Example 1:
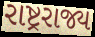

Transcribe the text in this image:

રાષ્ટ્રરાજ્ય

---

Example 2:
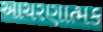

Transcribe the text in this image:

આચરણાત્મક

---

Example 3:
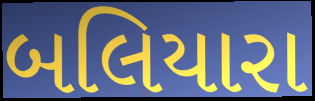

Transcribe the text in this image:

બલિયારા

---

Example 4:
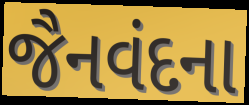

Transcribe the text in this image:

જૈનવંદના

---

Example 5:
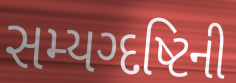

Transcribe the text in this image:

સમ્યગ્દષ્ટિની